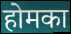
होमका